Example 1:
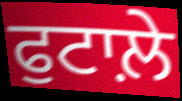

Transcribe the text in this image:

ਫੁਟਾਲ਼ੇ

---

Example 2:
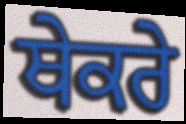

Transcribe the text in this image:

ਥੇਕਰੇ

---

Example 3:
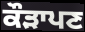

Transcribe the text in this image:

ਕੌੜਾਪਣ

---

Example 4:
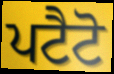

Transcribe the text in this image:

ਪਟੈਟੋ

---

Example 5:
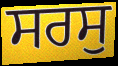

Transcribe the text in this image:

ਸਰਸੁ